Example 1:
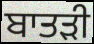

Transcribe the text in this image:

ਬਾਤੜੀ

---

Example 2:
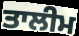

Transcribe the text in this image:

ਤਾਲੀਮ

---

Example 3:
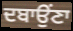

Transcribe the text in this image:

ਦਬਾਉਂਣਾ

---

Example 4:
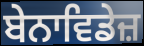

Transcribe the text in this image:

ਬੇਨਾਵਿਡੇਜ਼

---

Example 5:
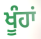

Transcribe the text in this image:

ਖੂੰਹਾਂ